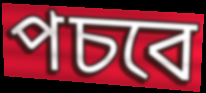
পচবে